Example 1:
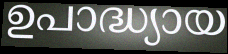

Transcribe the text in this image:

ഉപാദ്ധ്യായ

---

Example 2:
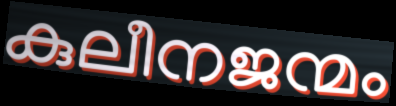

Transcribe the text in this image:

കുലീനജന്മം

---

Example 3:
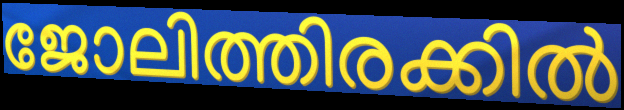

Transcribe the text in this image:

ജോലിത്തിരക്കിൽ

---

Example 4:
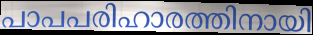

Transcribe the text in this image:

പാപപരിഹാരത്തിനായി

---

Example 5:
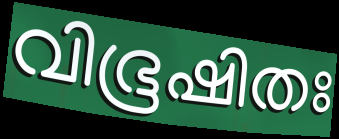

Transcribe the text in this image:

വിഭൂഷിതഃ